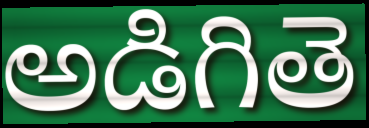
అడిగితె